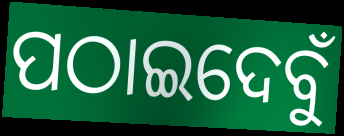
ପଠାଇଦେବୁଁ